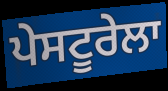
ਪੇਸਟੂਰੇਲਾ